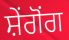
ਸ਼ੇਂਗੋਂਗ